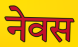
नेवस